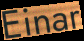
Einar